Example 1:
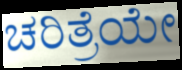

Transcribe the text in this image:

ಚರಿತ್ರೆಯೇ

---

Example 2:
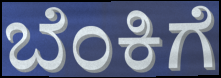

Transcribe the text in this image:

ಬೆಂಕಿಗೆ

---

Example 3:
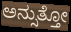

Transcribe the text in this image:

ಅನ್ಸುತ್ತೋ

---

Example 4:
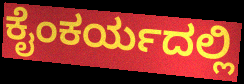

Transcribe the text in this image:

ಕೈಂಕರ್ಯದಲ್ಲಿ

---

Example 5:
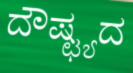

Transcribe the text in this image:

ದೌಷ್ಟ್ಯದ